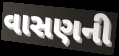
વાસણની